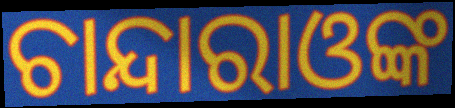
ଚାନ୍ଦାରାଓଙ୍କ